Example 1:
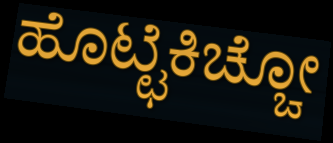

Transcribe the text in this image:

ಹೊಟ್ಟೆಕಿಚ್ಚೋ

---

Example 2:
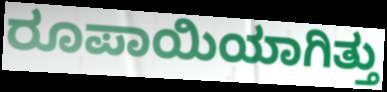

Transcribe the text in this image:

ರೂಪಾಯಿಯಾಗಿತ್ತು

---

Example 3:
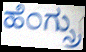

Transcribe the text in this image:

ಹೆಂಗ್ಸ್ರು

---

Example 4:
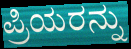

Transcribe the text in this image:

ಪ್ರಿಯರನ್ನು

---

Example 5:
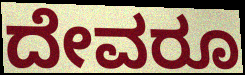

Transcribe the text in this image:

ದೇವರೂ